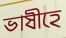
ভাষীহে